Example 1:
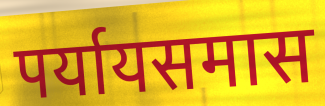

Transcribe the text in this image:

पर्यायसमास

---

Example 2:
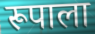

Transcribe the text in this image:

रूपाला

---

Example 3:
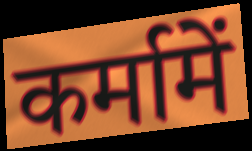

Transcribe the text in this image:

कर्मामें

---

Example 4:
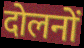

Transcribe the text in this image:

दोलनों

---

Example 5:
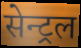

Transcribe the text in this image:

सेन्ट्रल